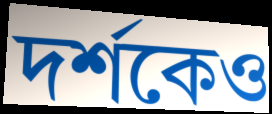
দৰ্শকেও